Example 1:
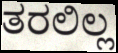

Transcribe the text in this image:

ತರಲಿಲ್ಲ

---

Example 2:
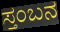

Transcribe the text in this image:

ಸ್ತಂಬನ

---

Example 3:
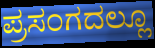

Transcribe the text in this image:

ಪ್ರಸಂಗದಲ್ಲೂ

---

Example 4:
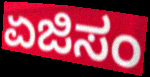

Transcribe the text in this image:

ಏಜಿಸಂ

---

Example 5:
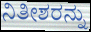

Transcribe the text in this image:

ನಿತೀಶರನ್ನು